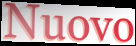
Nuovo